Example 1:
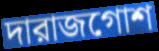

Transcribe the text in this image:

দারাজগোশ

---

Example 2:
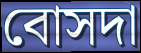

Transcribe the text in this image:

বোসদা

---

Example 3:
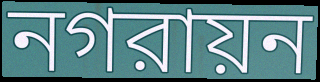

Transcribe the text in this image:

নগরায়ন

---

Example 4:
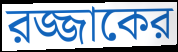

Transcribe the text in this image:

রজ্জাকের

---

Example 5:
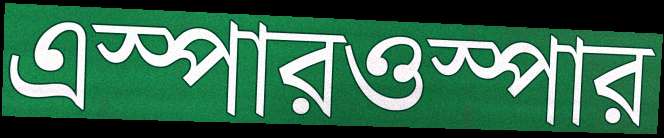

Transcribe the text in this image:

এস্পারওস্পার